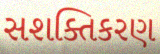
સશક્તિકરણ